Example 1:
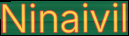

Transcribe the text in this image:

Ninaivil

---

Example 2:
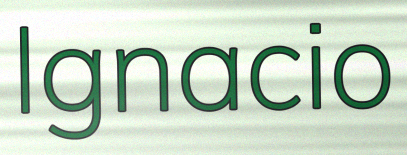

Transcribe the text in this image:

Ignacio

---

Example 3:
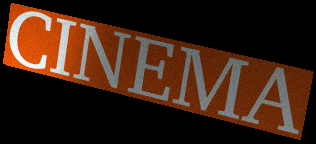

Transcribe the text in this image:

CINEMA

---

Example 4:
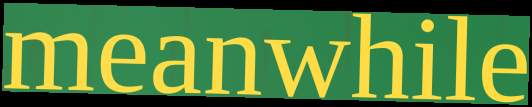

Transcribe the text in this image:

meanwhile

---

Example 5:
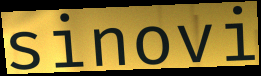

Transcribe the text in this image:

sinovi